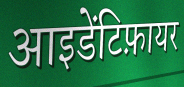
आइडेंटिफ़ायर